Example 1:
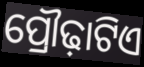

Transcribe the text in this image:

ପ୍ରୌଢ଼ାଟିଏ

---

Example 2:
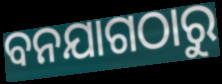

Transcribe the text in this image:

ବନଯାଗଠାରୁ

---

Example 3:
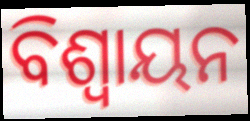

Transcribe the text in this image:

ବିଶ୍ଵାୟନ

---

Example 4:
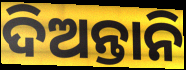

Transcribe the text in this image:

ଦିଅନ୍ତାନି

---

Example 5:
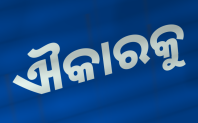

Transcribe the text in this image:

ଐକାରକୁ